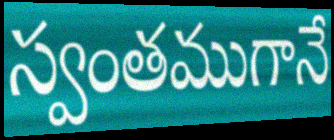
స్వంతముగానే